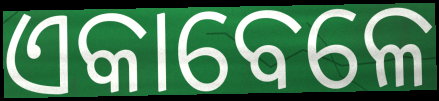
ଏକାବେଳେ